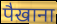
पैखाना